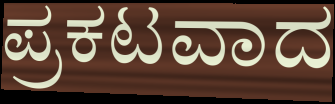
ಪ್ರಕಟವಾದ